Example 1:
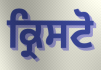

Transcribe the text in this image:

ਕ੍ਰਿਸਟੋ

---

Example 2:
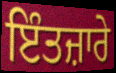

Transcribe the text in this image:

ਇੰਤਜ਼ਾਰੇ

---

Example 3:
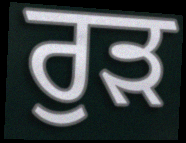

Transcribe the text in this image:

ਰੁੜ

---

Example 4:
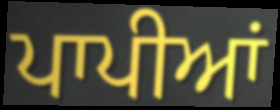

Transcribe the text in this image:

ਪਾਪੀਆਂ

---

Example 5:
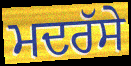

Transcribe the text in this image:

ਮਦਰੱਸੇ